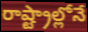
రాష్ట్రాల్లోనే